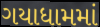
ગયાધામમાં